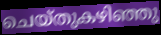
ചെയ്തുകഴിഞ്ഞു